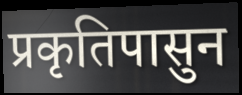
प्रकृतिपासुन